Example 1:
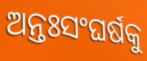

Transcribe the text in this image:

ଅନ୍ତଃସଂଘର୍ଷକୁ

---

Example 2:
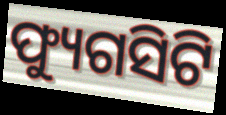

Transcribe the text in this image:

ଫ୍ୟୁଗସିଟି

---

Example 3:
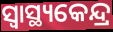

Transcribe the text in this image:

ସ୍ବାସ୍ଥ୍ୟକେନ୍ଦ୍ର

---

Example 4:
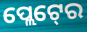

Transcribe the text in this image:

ପ୍ଲେଟ୍‍ରେ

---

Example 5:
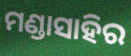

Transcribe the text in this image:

ମଣ୍ଡାସାହିର